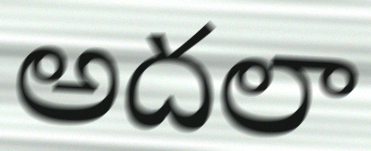
అదలా